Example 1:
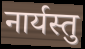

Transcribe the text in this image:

नार्यस्तु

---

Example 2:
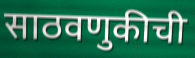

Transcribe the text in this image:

साठवणुकीची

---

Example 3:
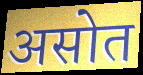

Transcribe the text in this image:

असोत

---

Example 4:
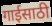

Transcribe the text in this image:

गाईसाठी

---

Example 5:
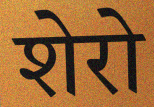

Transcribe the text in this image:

शेरो